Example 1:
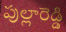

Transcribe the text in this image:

పుల్లారెడ్డి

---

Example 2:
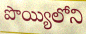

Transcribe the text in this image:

పొయ్యిలోని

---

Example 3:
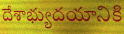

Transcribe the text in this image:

దేశాభ్యుదయానికి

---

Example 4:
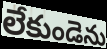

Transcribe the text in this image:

లేకుండెను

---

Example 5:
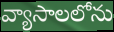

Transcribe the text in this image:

వ్యాసాలలోను